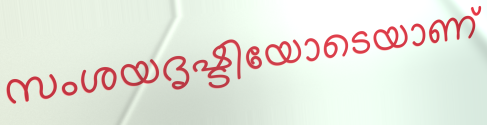
സംശയദൃഷ്ടിയോടെയാണ്